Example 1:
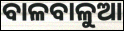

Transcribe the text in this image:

ବାଳବାଳୁଆ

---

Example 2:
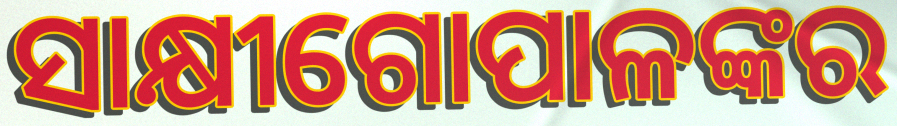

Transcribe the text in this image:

ସାକ୍ଷୀଗୋପାଳଙ୍କର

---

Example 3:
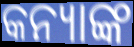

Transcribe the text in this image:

କନ୍ୟାଙ୍କ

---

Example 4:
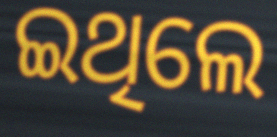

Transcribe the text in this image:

ଇଥିଲେ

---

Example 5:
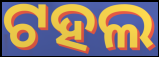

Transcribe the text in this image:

ଟହଲ